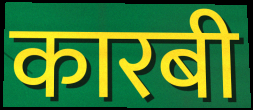
कारबी